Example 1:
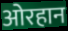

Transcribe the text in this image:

ओरहान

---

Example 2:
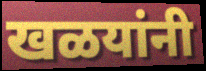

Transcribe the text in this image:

खळयांनी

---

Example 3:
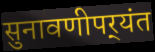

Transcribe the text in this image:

सुनावणीपर्यंत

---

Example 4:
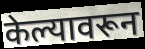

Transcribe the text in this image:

केल्यावरून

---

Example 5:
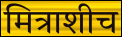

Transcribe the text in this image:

मित्राशीच